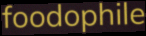
foodophile